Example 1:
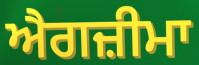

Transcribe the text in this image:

ਐਗਜ਼ੀਮਾ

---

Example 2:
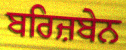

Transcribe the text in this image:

ਬਰਿਜ਼ਬੇਨ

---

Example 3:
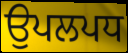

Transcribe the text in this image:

ਉਪਲਪਧ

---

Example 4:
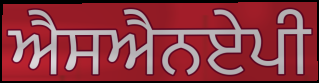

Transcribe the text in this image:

ਐਸਐਨਏਪੀ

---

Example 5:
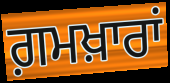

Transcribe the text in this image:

ਗ਼ਮਖ਼ਾਰਾਂ